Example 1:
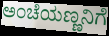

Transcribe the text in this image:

ಅಂಚೆಯಣ್ಣನಿಗೆ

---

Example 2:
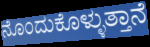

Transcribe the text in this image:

ನೊಂದುಕೊಳ್ಳುತ್ತಾನೆ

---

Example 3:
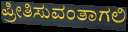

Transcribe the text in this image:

ಪ್ರೀತಿಸುವಂತಾಗಲಿ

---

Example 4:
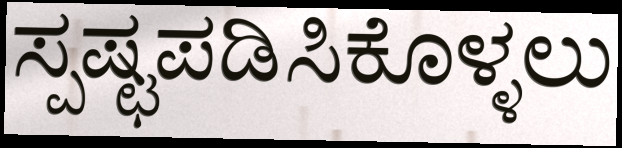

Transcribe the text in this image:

ಸ್ಪಷ್ಟಪಡಿಸಿಕೊಳ್ಳಲು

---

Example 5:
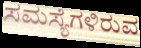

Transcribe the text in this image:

ಸಮಸ್ಯೆಗಳಿರುವ